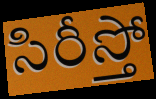
సిరీస్తో